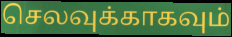
செலவுக்காகவும்